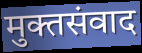
मुक्तसंवाद